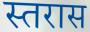
स्तरास